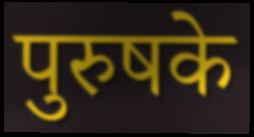
पुरुषके